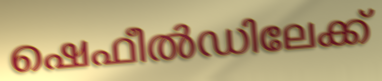
ഷെഫീൽഡിലേക്ക്